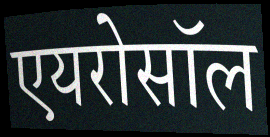
एयरोसॉल